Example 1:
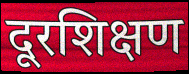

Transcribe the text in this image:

दूरशिक्षण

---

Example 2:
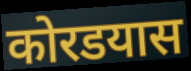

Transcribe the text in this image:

कोरडयास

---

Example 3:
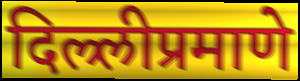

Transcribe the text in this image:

दिल्लीप्रमाणे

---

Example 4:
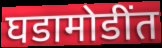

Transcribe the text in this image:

घडामोडींत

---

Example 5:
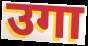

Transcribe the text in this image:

उगा